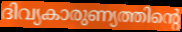
ദിവ്യകാരുണ്യത്തിന്റെ